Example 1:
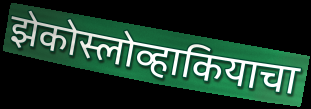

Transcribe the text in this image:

झेकोस्लोव्हाकियाचा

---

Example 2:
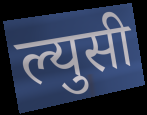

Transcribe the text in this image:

ल्युसी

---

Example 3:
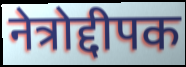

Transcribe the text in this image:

नेत्रोद्दीपक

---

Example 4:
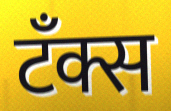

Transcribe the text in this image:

टँक्स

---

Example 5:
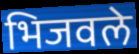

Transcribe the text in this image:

भिजवले